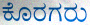
ಕೊರಗರು